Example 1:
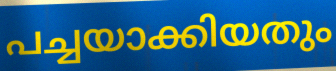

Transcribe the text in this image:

പച്ചയാക്കിയതും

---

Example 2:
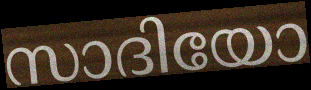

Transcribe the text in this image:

സാദിയോ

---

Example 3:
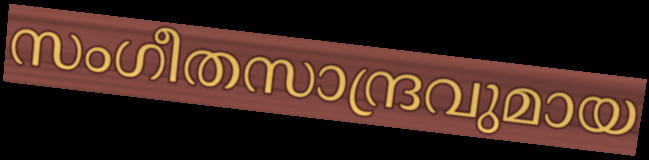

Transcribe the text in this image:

സംഗീതസാന്ദ്രവുമായ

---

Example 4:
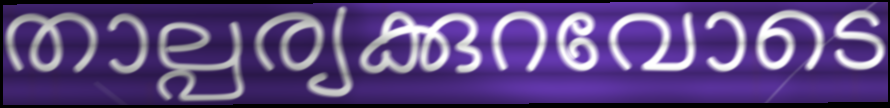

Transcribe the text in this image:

താല്പര്യക്കുറവോടെ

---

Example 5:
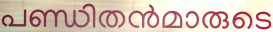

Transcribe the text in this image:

പണ്ഡിതൻമാരുടെ